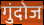
गुंदोज